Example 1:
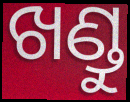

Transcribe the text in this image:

ଖଣ୍ଡୁ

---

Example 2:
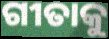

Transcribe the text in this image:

ଗୀତାକୁ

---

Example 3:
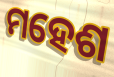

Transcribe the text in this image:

ମହେଶ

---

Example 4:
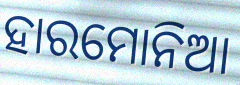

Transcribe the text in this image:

ହାରମୋନିଆ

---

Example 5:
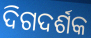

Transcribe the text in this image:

ଦିଗଦର୍ଶକ